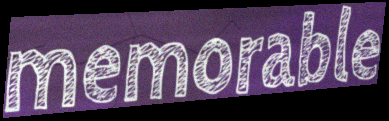
memorable